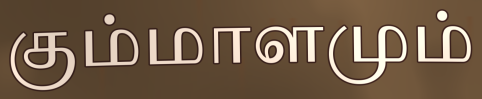
கும்மாளமும்